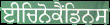
ਈਚਿਨੋਕੈਂਡਿਨਸ